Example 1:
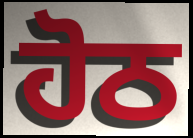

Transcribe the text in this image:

ਹੋਠ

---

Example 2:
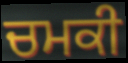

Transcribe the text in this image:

ਚਮਕੀ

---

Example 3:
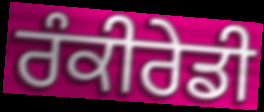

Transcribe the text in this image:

ਰੰਕੀਰੇਡੀ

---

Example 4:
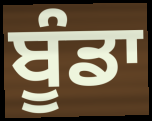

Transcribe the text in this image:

ਬੂੰਡਾ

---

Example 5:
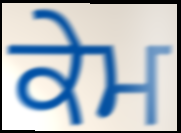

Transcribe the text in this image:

ਕੇਮ